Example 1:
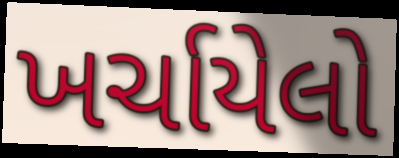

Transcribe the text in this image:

ખર્ચાયેલો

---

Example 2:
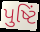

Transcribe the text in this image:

પુષ્ટિં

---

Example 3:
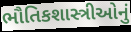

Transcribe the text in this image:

ભૌતિકશાસ્ત્રીઓનું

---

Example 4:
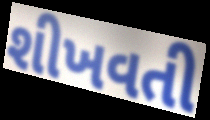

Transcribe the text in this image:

શીખવતી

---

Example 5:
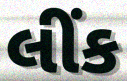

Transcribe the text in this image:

લીંક